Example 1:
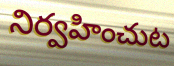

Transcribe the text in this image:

నిర్వహించుట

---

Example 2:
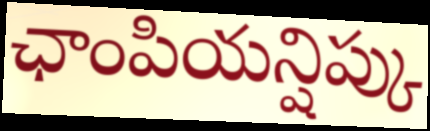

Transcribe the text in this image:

ఛాంపియన్షిప్కు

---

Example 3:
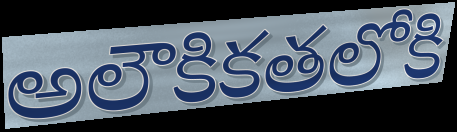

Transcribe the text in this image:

అలౌకికతలోకి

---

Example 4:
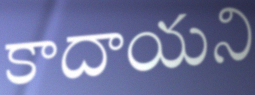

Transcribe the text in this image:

కాదాయని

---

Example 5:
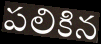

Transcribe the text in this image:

పలికిన